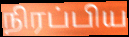
நிரப்பிய